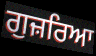
ਗੁਜ਼ਰਿਆ